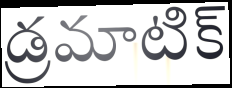
డ్రమాటిక్